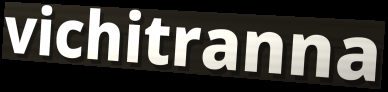
vichitranna